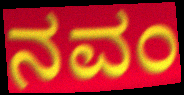
ನವಂ